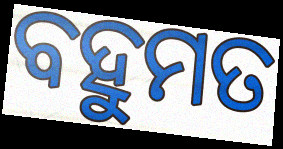
ବହୁମତ